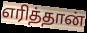
எரித்தான்